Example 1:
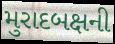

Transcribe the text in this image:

મુરાદબક્ષની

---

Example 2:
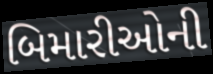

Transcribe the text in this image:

બિમારીઓની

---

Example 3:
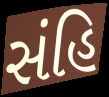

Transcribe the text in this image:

સંહિ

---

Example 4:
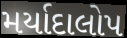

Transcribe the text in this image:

મર્યાદાલોપ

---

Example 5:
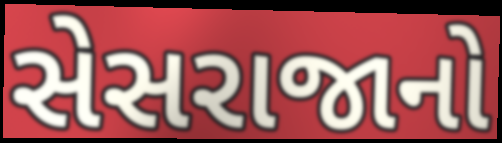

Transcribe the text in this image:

સેસરાજાનો